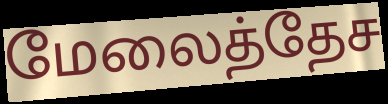
மேலைத்தேச